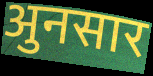
अुनसार